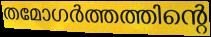
തമോഗർത്തത്തിന്റെ